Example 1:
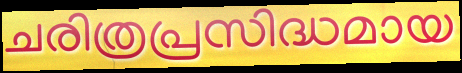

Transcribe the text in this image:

ചരിത്രപ്രസിദ്ധമായ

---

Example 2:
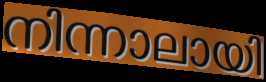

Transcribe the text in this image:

നിന്നാലായി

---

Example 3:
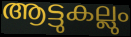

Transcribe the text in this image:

ആട്ടുകല്ലും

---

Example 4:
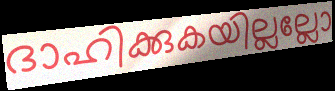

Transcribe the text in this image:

ദാഹിക്കുകയില്ലല്ലോ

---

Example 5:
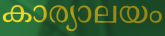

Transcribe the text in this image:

കാര്യാലയം